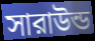
সারাউন্ড